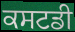
ਕਸਟਡੀ